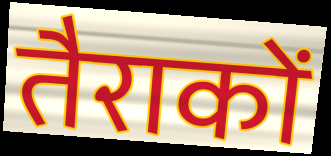
तैराकों